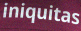
iniquitas